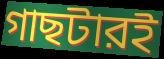
গাছটারই